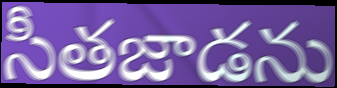
సీతజాడను